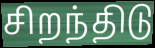
சிறந்திடு